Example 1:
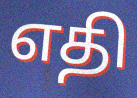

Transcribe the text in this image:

எதி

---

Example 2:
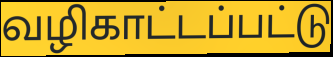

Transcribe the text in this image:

வழிகாட்டப்பட்டு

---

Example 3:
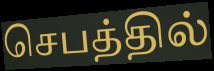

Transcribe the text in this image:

செபத்தில்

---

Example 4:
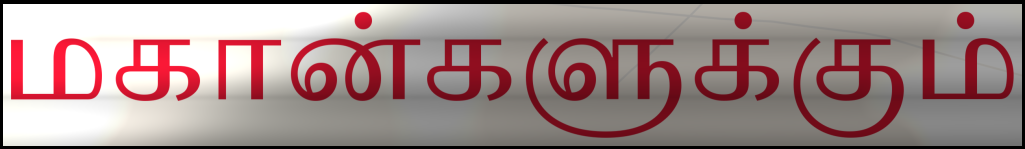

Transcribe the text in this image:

மகான்களுக்கும்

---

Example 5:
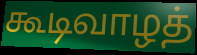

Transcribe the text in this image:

கூடிவாழத்